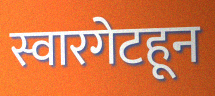
स्वारगेटहून